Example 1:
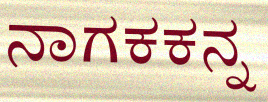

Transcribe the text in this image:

ನಾಗಕಕನ್ನ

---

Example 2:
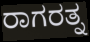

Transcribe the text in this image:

ರಾಗರತ್ನ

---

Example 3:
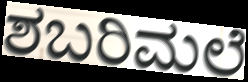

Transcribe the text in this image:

ಶಬರಿಮಲೆ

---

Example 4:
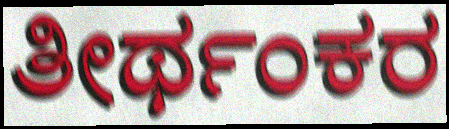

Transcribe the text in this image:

ತೀರ್ಥಂಕರ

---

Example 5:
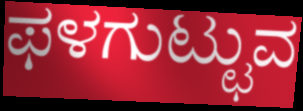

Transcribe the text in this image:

ಫಳಗುಟ್ಟುವ